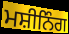
ਮਸ਼ੀਨਿੰਗ